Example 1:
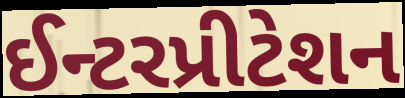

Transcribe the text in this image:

ઈન્ટરપ્રીટેશન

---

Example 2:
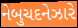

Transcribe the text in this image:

નેબુચદનેઝારે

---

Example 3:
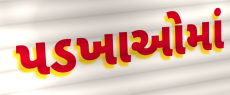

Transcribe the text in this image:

પડખાઓમાં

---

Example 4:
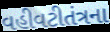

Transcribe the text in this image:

વહીવટીતંત્રના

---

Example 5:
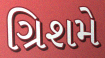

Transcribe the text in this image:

ગ્રિશમે